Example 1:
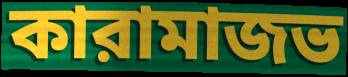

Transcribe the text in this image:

কারামাজভ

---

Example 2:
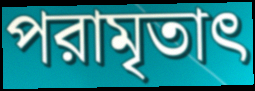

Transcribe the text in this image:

পরামৃতাৎ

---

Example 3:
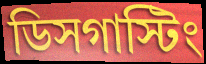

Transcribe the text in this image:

ডিসগাস্টিং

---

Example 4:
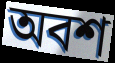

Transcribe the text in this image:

অবশ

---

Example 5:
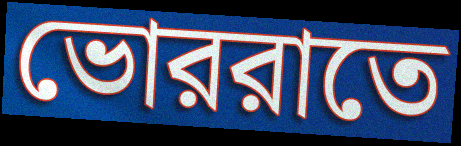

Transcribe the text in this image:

ভোররাতে